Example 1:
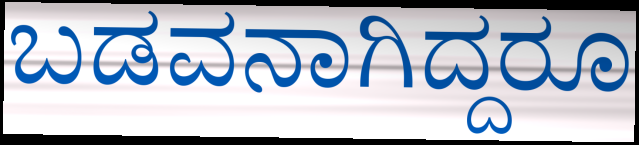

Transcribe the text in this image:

ಬಡವನಾಗಿದ್ದರೂ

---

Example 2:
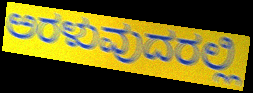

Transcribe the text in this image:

ಅರಳುವುದರಲ್ಲಿ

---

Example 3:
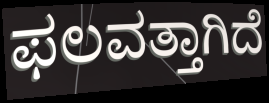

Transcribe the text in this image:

ಫಲವತ್ತಾಗಿದೆ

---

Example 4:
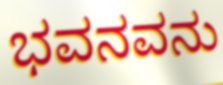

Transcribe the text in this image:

ಭವನವನು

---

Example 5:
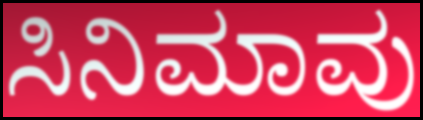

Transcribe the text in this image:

ಸಿನಿಮಾವು